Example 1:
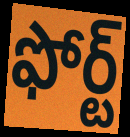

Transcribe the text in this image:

ఫోర్ట్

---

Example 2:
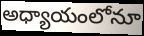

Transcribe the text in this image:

అధ్యాయంలోనూ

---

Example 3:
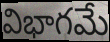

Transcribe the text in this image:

విభాగమే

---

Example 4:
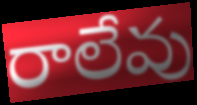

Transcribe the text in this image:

రాలేవు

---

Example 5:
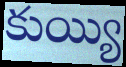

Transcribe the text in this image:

కుయ్యి